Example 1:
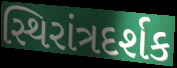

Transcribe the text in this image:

સ્થિરાંત્રદર્શક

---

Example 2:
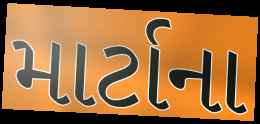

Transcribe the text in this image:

માર્ટાના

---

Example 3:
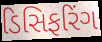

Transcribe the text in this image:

ડિસિફરિંગ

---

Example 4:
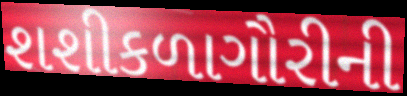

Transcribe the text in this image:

શશીકળાગૌરીની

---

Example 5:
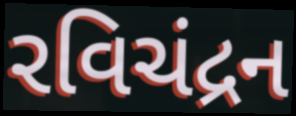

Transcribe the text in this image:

રવિચંદ્રન